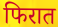
फिरात